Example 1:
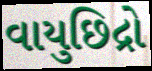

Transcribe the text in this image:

વાયુછિદ્રો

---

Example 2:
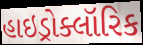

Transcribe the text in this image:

હાઇડ્રોક્લૉરિક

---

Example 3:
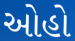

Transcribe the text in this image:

ઓહો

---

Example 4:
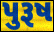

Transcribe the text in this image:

પુરૂષ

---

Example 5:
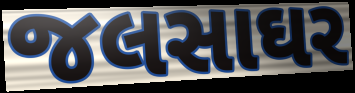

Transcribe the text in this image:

જલસાઘર